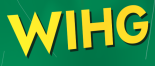
WIHG